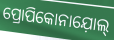
ପ୍ରୋପିକୋନାଯ଼ୋଲ୍